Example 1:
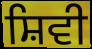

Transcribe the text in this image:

ਸ਼ਿਵੀ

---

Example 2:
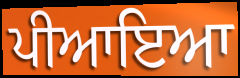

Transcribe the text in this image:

ਪੀਆਇਆ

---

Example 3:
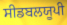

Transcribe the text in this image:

ਸੀਡਬਲਯੂਪੀ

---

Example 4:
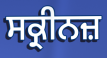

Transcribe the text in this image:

ਸਕ੍ਰੀਨਜ਼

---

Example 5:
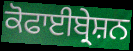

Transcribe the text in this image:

ਕੋਫਾਈਬ੍ਰੇਸ਼ਨ